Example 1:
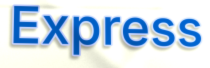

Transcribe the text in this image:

Express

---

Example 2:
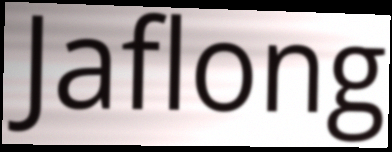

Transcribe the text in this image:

Jaflong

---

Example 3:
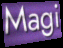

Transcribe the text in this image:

Magi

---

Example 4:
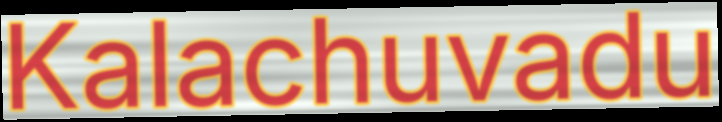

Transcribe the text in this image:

Kalachuvadu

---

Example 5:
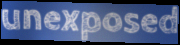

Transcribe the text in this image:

unexposed